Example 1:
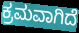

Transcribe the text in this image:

ಕ್ರಮವಾಗಿದೆ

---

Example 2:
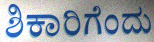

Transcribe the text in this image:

ಶಿಕಾರಿಗೆಂದು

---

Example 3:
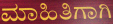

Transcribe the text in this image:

ಮಾಹಿತಿಗಾಗಿ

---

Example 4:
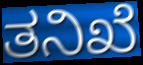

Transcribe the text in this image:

ತನಿಖೆ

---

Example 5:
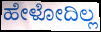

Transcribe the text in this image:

ಹೇಳೋದಿಲ್ಲ